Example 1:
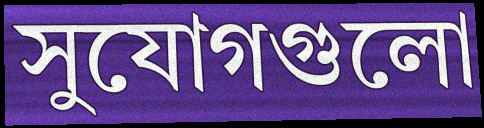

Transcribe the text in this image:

সুযোগগুলো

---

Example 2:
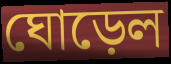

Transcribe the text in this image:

ঘোড়েল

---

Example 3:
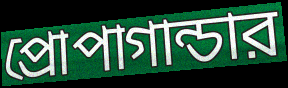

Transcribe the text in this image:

প্রোপাগান্ডার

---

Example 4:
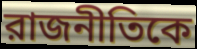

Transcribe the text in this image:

রাজনীতিকে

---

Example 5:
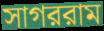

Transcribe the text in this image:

সাগররাম